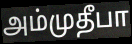
அம்முதீபா